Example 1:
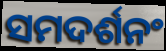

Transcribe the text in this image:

ସମଦର୍ଶନଂ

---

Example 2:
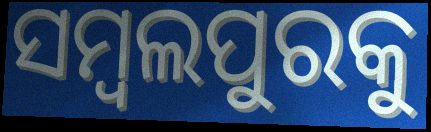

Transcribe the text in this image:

ସମ୍ୱଲପୁରକୁ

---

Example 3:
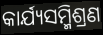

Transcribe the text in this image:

କାର୍ଯ୍ୟସମ୍ମିଶ୍ରଣ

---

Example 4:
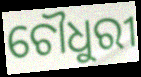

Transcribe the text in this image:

ଚୌଧୁରୀ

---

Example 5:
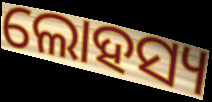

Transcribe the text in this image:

ଲୋହସ୍ୟ